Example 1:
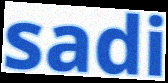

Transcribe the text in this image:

sadi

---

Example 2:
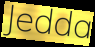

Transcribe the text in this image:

Jedda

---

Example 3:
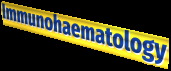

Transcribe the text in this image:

Immunohaematology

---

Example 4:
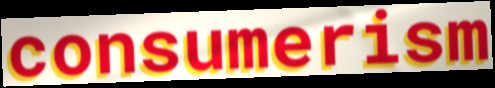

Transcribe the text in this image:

consumerism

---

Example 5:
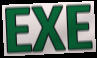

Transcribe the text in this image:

EXE